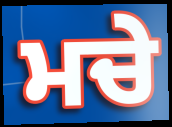
ਮਚੇ